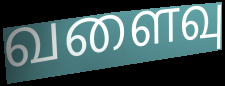
வளைவு